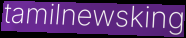
tamilnewsking